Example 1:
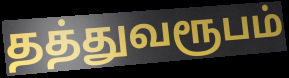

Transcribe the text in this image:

தத்துவரூபம்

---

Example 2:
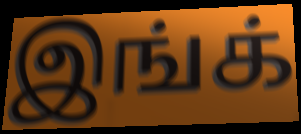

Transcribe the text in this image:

இங்க்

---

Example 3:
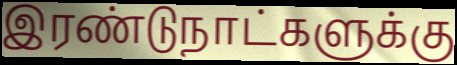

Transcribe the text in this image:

இரண்டுநாட்களுக்கு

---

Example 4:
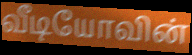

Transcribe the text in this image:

வீடியோவின்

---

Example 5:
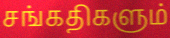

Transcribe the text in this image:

சங்கதிகளும்